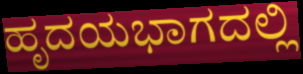
ಹೃದಯಭಾಗದಲ್ಲಿ